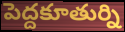
పెద్దకూతుర్ని